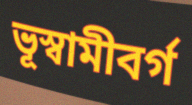
ভূস্বামীবর্গ